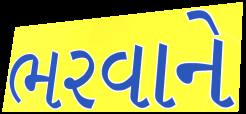
ભરવાને